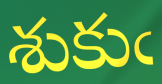
శుకుఁ